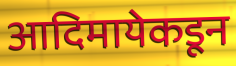
आदिमायेकडून